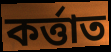
কৰ্ত্তাত